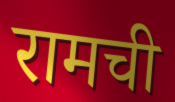
रामची